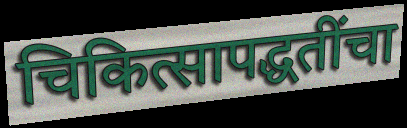
चिकित्सापद्धतींचा